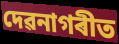
দেৱনাগৰীত